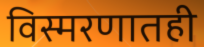
विस्मरणातही